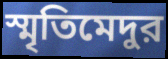
স্মৃতিমেদুর